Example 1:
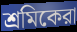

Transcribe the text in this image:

শ্রমিকেরা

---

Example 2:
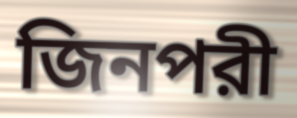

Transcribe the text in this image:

জিনপরী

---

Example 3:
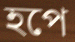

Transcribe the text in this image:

হপে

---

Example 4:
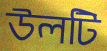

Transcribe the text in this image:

উলটি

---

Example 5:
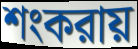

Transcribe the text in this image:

শংকরায়